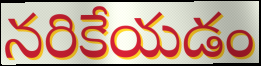
నరికేయడం